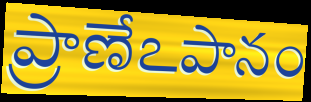
ప్రాణేఽపానం